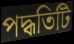
পদ্ধতিটি